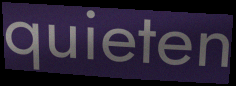
quieten